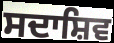
ਸਦਾਸ਼ਿਵ